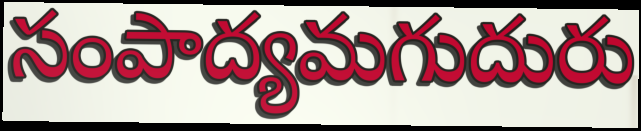
సంపాద్యమగుదురు